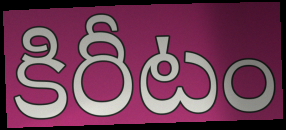
కిరీటం